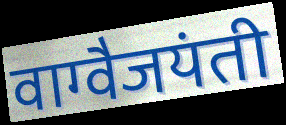
वाग्वैजयंती